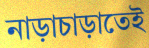
নাড়াচাড়াতেই